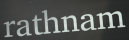
rathnam